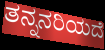
ತನ್ನನರಿಯದೆ